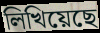
লিখিয়েছে